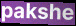
pakshe